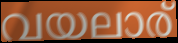
വയലാര്